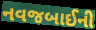
નવજબાઈની